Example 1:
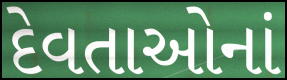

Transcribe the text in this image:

દેવતાઓનાં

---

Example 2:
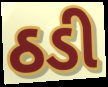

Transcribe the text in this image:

ઠડી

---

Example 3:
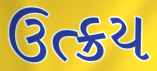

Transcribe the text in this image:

ઉત્ક્રય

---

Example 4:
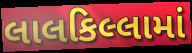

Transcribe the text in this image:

લાલકિલ્લામાં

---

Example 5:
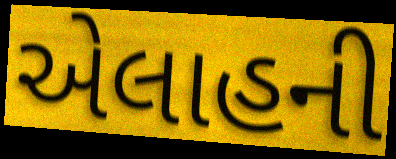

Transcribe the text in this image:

એલાહની